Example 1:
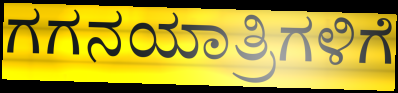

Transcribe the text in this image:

ಗಗನಯಾತ್ರಿಗಳಿಗೆ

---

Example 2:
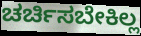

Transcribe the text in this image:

ಚರ್ಚಿಸಬೇಕಿಲ್ಲ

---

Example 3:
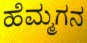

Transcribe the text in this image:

ಹೆಮ್ಮಗನ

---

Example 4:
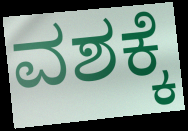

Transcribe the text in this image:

ವಶಕ್ಕೆ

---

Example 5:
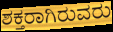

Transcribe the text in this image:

ಶಕ್ತರಾಗಿರುವರು